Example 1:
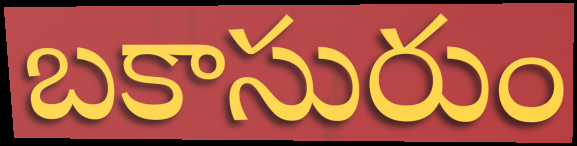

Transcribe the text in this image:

బకాసురుం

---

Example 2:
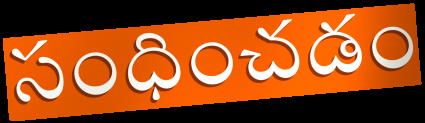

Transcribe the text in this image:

సంధించడం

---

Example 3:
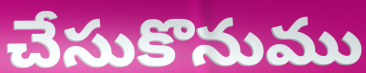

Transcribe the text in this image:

చేసుకొనుము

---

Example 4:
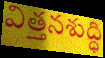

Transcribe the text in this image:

విత్తనశుద్ధి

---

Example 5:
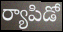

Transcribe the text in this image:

ర్యాపిడో